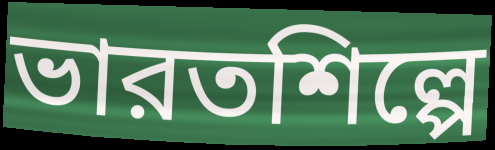
ভারতশিল্পে